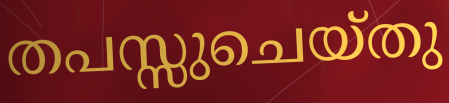
തപസ്സുചെയ്തു